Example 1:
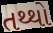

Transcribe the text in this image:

તથ્થો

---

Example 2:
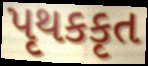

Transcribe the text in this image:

પૃથકકૃત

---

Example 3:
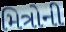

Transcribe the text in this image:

મિત્રોની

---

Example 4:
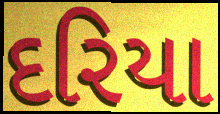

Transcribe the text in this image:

દરિયા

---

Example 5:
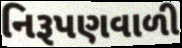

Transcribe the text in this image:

નિરૂપણવાળી